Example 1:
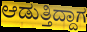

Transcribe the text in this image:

ಆಡುತ್ತಿದ್ದಾಗ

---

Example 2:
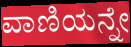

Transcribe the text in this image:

ವಾಣಿಯನ್ನೇ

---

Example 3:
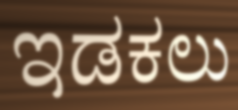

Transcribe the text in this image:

ಇಡಕಲು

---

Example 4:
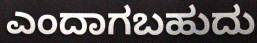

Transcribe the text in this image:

ಎಂದಾಗಬಹುದು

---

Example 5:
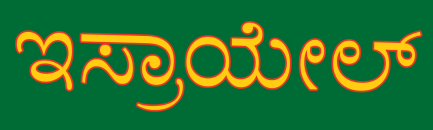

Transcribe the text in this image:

ಇಸ್ರಾಯೇಲ್